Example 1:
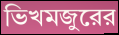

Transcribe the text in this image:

ভিখমজুরের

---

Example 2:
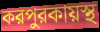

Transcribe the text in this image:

করপুরকায়স্থ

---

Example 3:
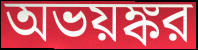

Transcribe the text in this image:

অভয়ঙ্কর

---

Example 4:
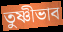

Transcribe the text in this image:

তুষ্ণীভাব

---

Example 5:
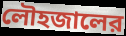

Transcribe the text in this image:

লৌহজালের